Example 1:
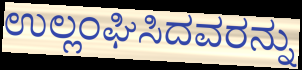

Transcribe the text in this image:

ಉಲ್ಲಂಘಿಸಿದವರನ್ನು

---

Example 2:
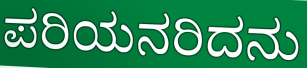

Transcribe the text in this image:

ಪರಿಯನರಿದನು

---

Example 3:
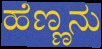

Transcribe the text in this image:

ಹೆಣ್ಣನು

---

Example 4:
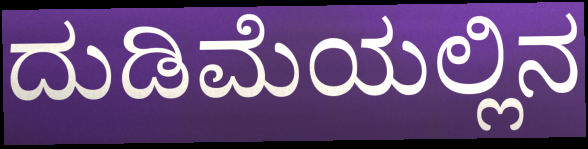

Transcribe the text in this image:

ದುಡಿಮೆಯಲ್ಲಿನ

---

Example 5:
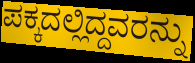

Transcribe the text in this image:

ಪಕ್ಕದಲ್ಲಿದ್ದವರನ್ನು